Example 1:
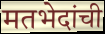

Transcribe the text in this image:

मतभेदांची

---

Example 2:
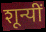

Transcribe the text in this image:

शून्यीं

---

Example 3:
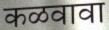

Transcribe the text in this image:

कळवावा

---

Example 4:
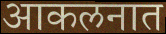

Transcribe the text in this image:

आकलनात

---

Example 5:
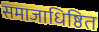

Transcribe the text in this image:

समाजाधिष्ठित